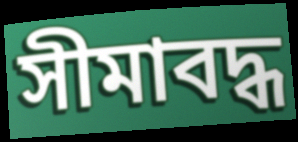
সীমাবদ্ধ